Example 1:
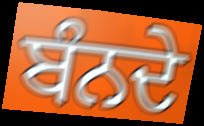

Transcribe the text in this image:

ਬੰਨਦੇ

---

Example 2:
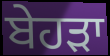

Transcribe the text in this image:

ਬੇਹੜਾ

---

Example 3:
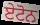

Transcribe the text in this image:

ਏਟੋਨ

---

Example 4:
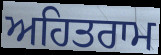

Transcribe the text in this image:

ਅਹਿਤਰਾਮ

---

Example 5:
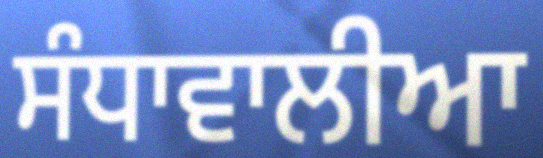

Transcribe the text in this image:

ਸੰਧਾਵਾਲੀਆ